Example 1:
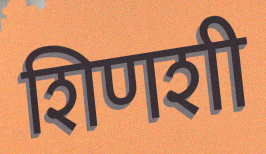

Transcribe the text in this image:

शिणशी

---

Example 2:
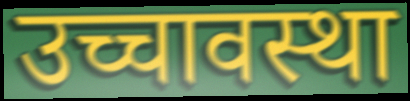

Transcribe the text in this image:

उच्चावस्था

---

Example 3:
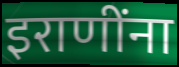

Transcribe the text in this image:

इराणींना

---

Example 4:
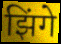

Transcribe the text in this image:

झिंगे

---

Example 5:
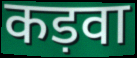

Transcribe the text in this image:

कड़वा